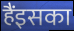
हैंइसका